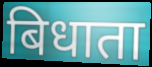
बिधाता